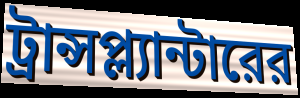
ট্রান্সপ্ল্যান্টারের